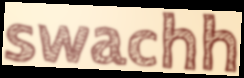
swachh